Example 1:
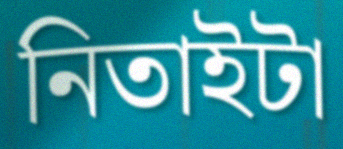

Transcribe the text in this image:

নিতাইটা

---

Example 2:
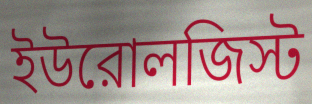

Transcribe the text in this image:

ইউরোলজিস্ট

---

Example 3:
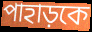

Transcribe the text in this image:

পাহাড়কে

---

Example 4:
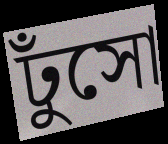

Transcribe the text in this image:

ঢুঁসো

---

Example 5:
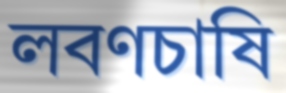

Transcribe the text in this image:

লবণচাষি